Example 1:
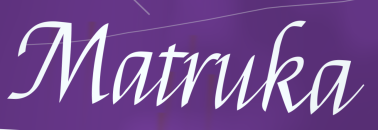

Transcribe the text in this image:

Matruka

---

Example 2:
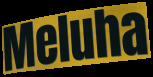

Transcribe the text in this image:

Meluha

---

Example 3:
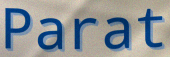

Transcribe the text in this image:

Parat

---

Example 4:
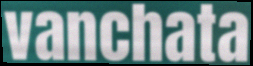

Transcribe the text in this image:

vanchata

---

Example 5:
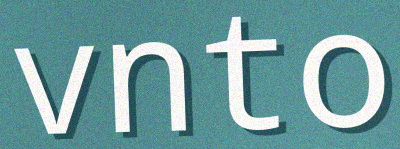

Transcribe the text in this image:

vnto